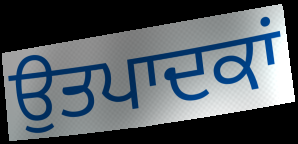
ਉਤਪਾਦਕਾਂ